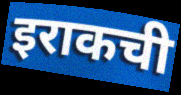
इराकची